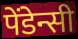
पेंडेन्सी